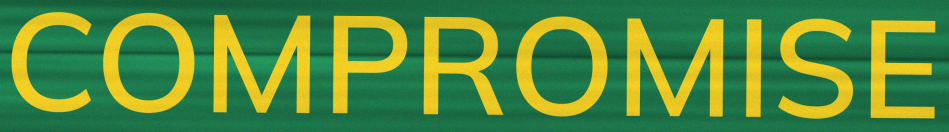
COMPROMISE